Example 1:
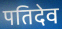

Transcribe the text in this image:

पतिदेव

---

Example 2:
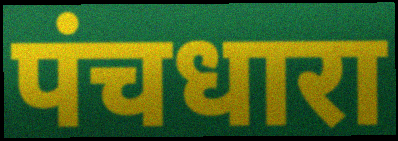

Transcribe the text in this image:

पंचधारा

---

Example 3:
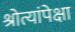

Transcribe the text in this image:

श्रोत्यांपेक्षा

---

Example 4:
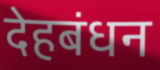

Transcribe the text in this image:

देहबंधन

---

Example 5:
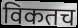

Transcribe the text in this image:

विकतच